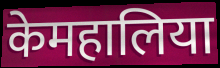
केमहालिया